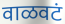
वाळवटं